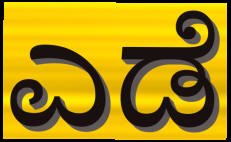
ಎಡೆ